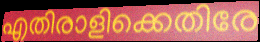
എതിരാളിക്കെതിരേ